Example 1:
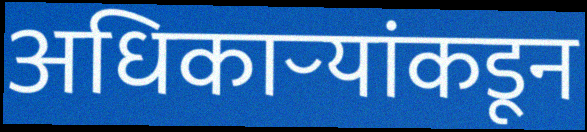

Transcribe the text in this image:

अधिकाऱ्यांकडून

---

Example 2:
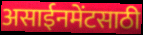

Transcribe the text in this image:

असाईनमेंटसाठी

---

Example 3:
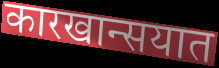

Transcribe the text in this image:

कारखान्सयात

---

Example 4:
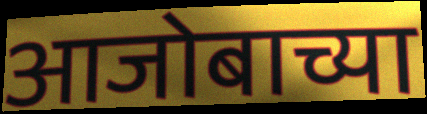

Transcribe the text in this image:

आजोबाच्या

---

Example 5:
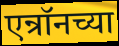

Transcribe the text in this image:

एन्रॉनच्या